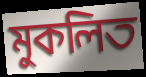
মুকলিত